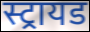
स्ट्रायड